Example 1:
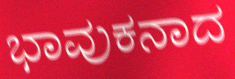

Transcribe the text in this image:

ಭಾವುಕನಾದ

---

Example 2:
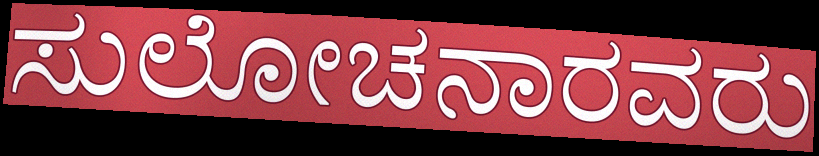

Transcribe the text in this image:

ಸುಲೋಚನಾರವರು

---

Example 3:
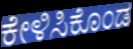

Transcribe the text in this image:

ಕೇಳಿಸಿಕೊಂಡ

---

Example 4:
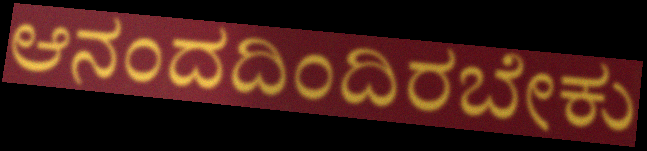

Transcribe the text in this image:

ಆನಂದದಿಂದಿರಬೇಕು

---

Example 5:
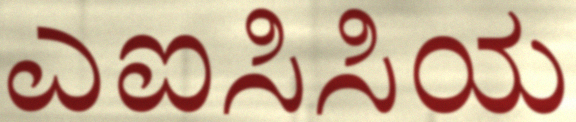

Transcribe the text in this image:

ಎಐಸಿಸಿಯ